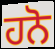
ਹਨੋ